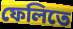
ফেলিতে